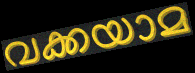
വക്കയാമ